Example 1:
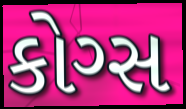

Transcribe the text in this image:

કોગ્સ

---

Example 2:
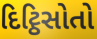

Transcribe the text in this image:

દિટ્ઠિસોતો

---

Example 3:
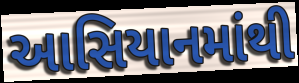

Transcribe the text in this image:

આસિયાનમાંથી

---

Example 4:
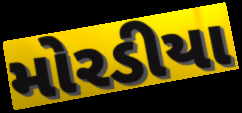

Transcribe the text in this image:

મોરડીયા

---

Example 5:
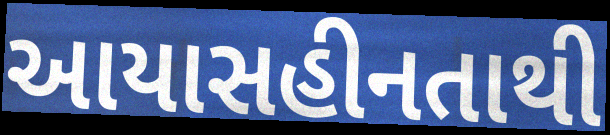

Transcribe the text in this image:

આયાસહીનતાથી